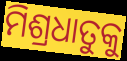
ମିଶ୍ରଧାତୁକୁ